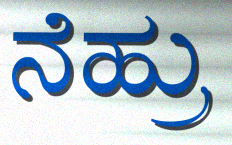
ನೆಹ್ರು